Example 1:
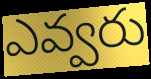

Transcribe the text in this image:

ఎవ్వరు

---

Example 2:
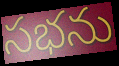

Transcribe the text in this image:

సభను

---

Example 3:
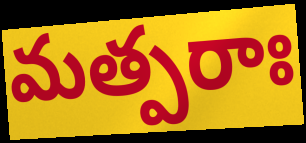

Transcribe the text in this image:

మత్పరాః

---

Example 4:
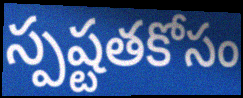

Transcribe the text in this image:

స్పష్టతకోసం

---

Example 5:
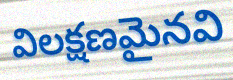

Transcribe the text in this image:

విలక్షణమైనవి